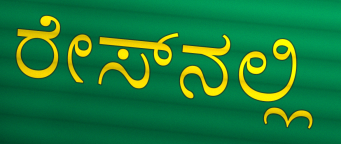
ರೇಸ್‍ನಲ್ಲಿ